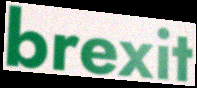
brexit